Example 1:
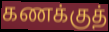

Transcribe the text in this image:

கணக்குத்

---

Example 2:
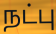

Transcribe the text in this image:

நட்பு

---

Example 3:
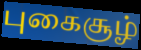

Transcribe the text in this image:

புகைசூழ்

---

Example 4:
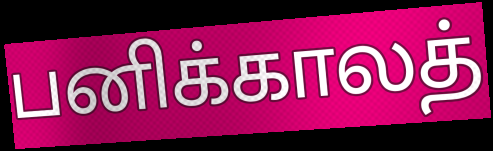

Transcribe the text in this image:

பனிக்காலத்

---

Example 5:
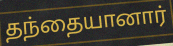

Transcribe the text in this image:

தந்தையானார்